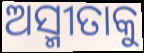
ଅସ୍ମୀତାକୁ